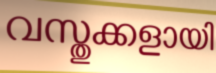
വസ്തുക്കളായി